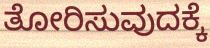
ತೋರಿಸುವುದಕ್ಕೆ